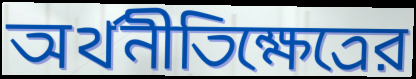
অর্থনীতিক্ষেত্রের